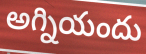
అగ్నియందు